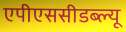
एपीएससीडब्ल्यू